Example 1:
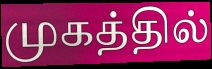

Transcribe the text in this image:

முகத்தில்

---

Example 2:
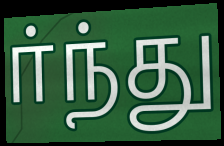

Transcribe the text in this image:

ர்ந்து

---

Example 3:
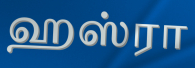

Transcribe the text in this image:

ஹஸ்ரா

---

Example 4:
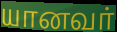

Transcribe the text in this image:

யானவர்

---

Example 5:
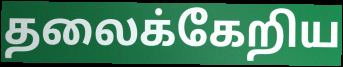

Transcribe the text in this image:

தலைக்கேறிய